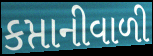
કપ્તાનીવાળી